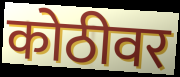
कोठीवर